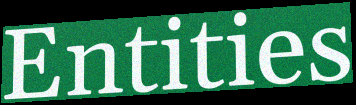
Entities